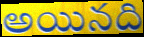
అయినది